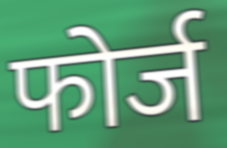
फोर्ज